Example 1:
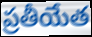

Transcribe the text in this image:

ప్రతీయేత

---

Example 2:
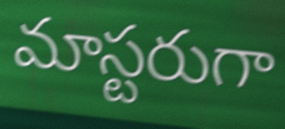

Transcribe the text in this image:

మాస్టరుగా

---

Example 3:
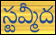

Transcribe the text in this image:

స్టవ్మీద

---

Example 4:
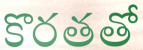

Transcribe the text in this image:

కొరతతో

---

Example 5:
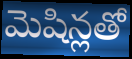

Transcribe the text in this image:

మెషిన్లతో